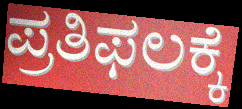
ಪ್ರತಿಫಲಕ್ಕೆ